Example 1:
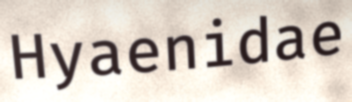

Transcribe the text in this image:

Hyaenidae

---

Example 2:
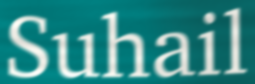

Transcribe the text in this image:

Suhail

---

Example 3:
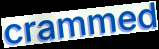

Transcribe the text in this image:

crammed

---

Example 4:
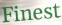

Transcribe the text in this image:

Finest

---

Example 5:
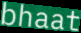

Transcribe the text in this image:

bhaat